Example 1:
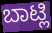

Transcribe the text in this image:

ಬಾಟ್ಲಿ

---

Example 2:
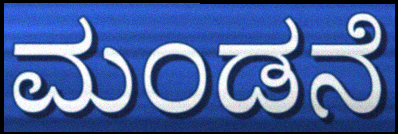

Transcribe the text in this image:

ಮಂಡನೆ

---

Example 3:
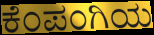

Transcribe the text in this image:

ಕೆಂಪಂಗಿಯ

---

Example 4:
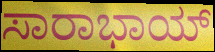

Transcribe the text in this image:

ಸಾರಾಭಾಯ್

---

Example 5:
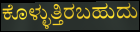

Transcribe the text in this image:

ಕೊಳ್ಳುತ್ತಿರಬಹುದು